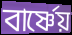
বার্ষ্ণেয়